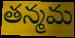
తన్మమ